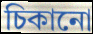
চিকানো